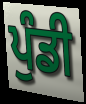
ਪੁੰਡੀ